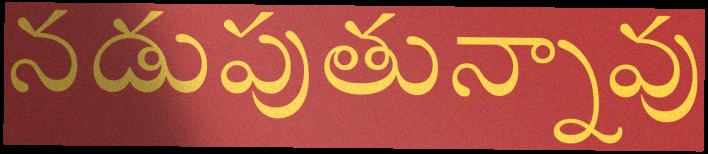
నడుపుతున్నావు